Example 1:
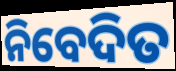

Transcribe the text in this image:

ନିବେଦିତ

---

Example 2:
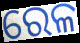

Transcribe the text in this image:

ରେଳ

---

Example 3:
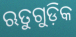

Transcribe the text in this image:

ଋତୁଗୁଡ଼ିକ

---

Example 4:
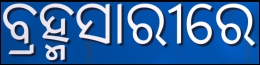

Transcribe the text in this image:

ବ୍ରହ୍ମସାରୀରେ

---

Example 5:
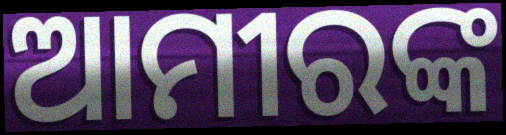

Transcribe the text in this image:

ଆମୀରଙ୍କ